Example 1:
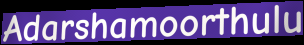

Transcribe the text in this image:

Adarshamoorthulu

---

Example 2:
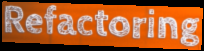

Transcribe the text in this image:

Refactoring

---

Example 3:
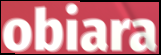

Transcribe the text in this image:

obiara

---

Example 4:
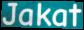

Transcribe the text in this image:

Jakat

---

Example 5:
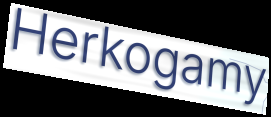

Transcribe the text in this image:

Herkogamy